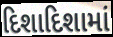
દિશાદિશામાં